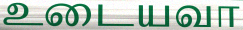
உடையவா